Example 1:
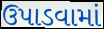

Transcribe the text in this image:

ઉપાડવામાં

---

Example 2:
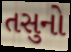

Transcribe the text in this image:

તસુનો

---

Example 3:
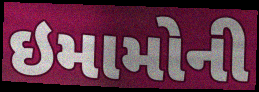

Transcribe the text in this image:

ઇમામોની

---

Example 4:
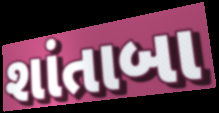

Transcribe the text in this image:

શાંતાબા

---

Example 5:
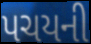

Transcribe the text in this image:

પચયની